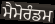
ਮੈਮੋਰੰਡਮ